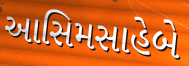
આસિમસાહેબે